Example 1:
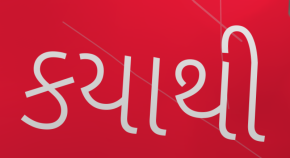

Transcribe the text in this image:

કયાથી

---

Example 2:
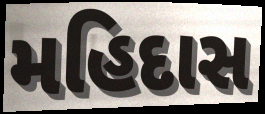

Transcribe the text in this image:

મહિદાસ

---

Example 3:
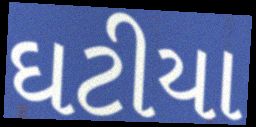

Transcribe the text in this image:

ઘટીયા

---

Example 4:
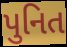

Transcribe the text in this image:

પુનિત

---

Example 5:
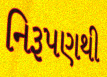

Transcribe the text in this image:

નિરૂપણથી